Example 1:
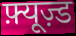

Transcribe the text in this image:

फ़्यूज़्ड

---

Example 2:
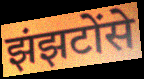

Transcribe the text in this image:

झंझटोंसे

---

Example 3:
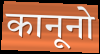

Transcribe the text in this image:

कानूनो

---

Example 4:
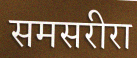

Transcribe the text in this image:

समसरीरा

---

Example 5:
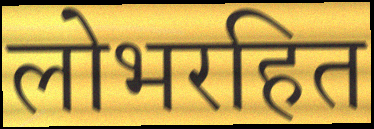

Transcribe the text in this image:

लोभरहित